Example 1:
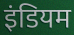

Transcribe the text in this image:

इंडियम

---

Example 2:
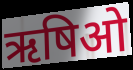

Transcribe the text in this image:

ऋषिओ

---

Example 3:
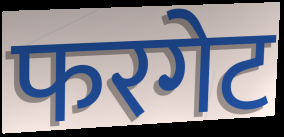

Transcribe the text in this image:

फरगेट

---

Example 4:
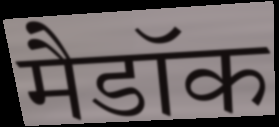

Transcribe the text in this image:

मैडॉक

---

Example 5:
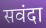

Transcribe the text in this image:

सवंदा